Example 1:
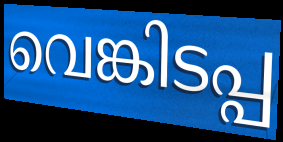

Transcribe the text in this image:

വെങ്കിടപ്പ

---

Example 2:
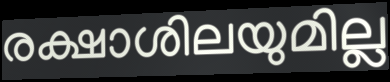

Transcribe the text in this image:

രക്ഷാശിലയുമില്ല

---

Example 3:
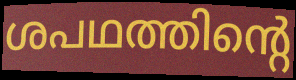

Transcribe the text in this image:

ശപഥത്തിന്റെ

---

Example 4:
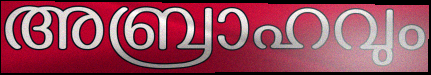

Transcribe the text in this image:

അബ്രാഹവും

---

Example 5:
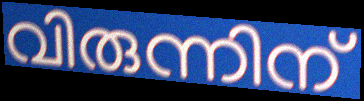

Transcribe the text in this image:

വിരുന്നിന്